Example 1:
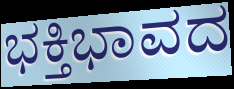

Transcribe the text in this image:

ಭಕ್ತಿಭಾವದ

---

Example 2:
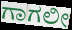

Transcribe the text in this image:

ಗಾಗಲೀ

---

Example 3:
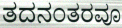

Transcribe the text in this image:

ತದನಂತರವೂ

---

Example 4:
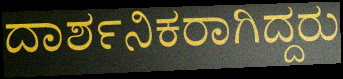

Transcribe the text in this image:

ದಾರ್ಶನಿಕರಾಗಿದ್ದರು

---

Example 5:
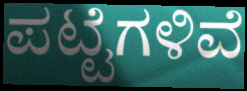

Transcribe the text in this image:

ಪಟ್ಟೆಗಳಿವೆ